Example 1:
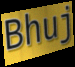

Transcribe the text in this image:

Bhuj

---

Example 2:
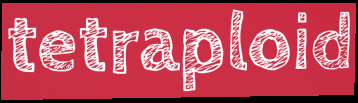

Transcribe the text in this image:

tetraploid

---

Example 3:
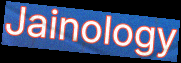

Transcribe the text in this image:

Jainology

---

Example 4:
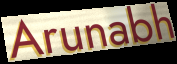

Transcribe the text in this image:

Arunabh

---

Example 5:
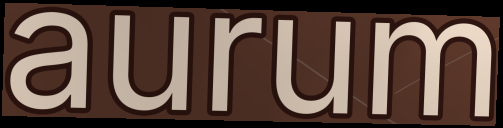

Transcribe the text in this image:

aurum